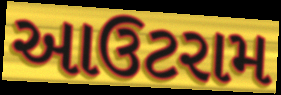
આઉટરામ